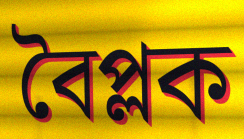
বৈপ্লক